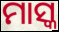
ମାସ୍କ